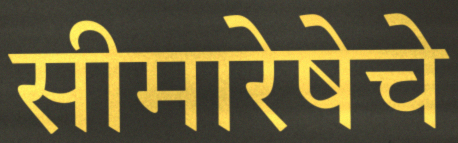
सीमारेषेचे